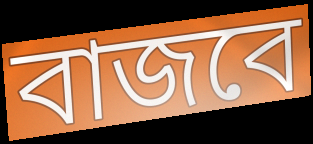
বাজবে